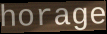
horage